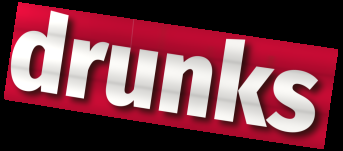
drunks